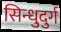
सिन्धुदुर्ग